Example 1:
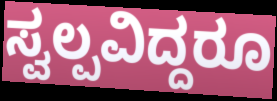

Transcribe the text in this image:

ಸ್ವಲ್ಪವಿದ್ದರೂ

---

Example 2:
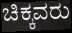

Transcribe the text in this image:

ಚಿಕ್ಕವರು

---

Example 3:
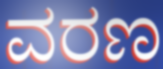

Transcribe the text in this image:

ವರಣ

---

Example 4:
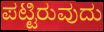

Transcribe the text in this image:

ಪಟ್ಟಿರುವುದು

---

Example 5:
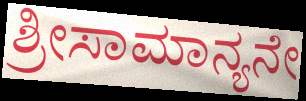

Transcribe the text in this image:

ಶ್ರೀಸಾಮಾನ್ಯನೇ